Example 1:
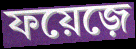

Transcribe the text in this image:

ফয়েজ়ে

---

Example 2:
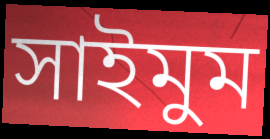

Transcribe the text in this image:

সাইমুম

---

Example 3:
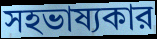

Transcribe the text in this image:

সহভাষ্যকার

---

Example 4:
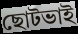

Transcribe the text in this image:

ছোটভাই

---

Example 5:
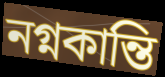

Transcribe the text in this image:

নগ্নকান্তি